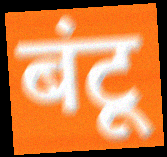
बंटू